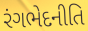
રંગભેદનીતિ